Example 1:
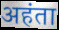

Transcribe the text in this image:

अहंता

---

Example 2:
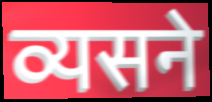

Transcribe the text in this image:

व्यसने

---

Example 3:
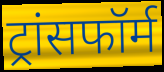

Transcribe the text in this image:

ट्रांसफॉर्म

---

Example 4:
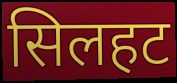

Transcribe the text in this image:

सिलहट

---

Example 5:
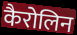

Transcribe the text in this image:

कैरोलिन